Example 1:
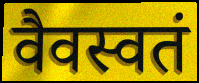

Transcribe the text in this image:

वैवस्वतं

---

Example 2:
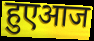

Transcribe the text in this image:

हुएआज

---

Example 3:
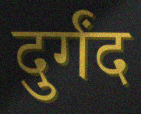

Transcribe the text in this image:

दुर्गंद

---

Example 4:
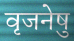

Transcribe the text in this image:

वृजनेषु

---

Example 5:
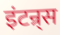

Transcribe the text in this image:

इंटन्र्स